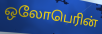
ஒலோபெரின்